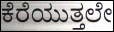
ಕೆರೆಯುತ್ತಲೇ